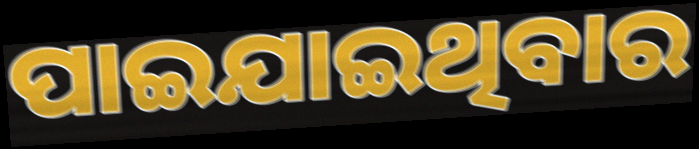
ପାଇଯାଇଥିବାର